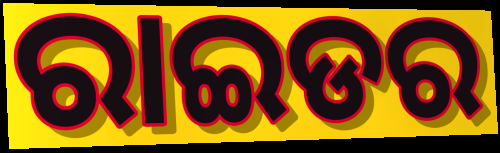
ରାଇଡର